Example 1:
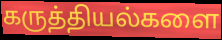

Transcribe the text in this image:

கருத்தியல்களை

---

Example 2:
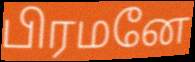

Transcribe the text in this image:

பிரமனே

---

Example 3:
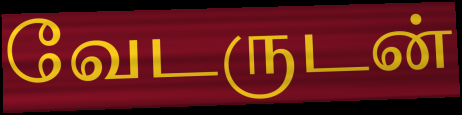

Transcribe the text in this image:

வேடருடன்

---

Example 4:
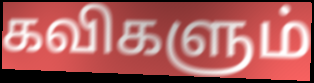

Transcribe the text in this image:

கவிகளும்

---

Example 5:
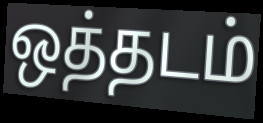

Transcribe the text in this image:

ஒத்தடம்